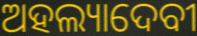
ଅହଲ୍ୟାଦେବୀ